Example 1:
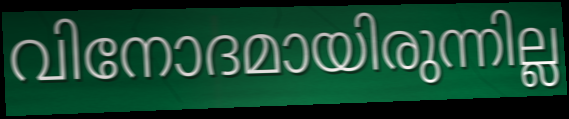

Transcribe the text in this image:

വിനോദമായിരുന്നില്ല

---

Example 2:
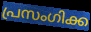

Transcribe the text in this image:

പ്രസംഗിക്ക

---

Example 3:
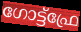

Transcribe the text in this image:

ഗോട്ട്ഫ്രേ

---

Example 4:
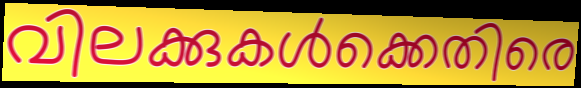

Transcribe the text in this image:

വിലക്കുകൾക്കെതിരെ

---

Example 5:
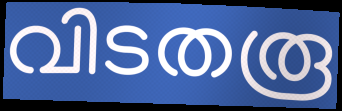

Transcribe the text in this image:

വിടതരൂ